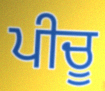
ਪੀਚੂ